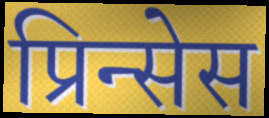
प्रिन्सेस